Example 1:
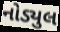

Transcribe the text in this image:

નોડ્યુલ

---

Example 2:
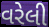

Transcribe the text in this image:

વરેલી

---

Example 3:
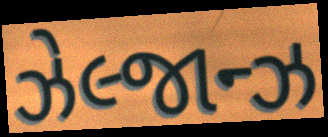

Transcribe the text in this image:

ઝેલ્જાન્ઝ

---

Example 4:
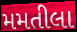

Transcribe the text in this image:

મમતીલા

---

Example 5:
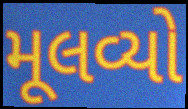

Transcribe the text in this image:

મૂલવ્યો